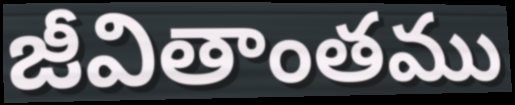
జీవితాంతము